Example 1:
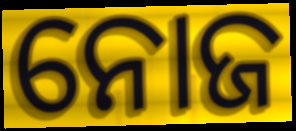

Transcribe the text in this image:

ନୋଜ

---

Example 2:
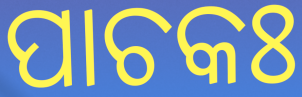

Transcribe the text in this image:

ପାଚକଃ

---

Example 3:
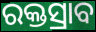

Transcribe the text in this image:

ରକ୍ତସ୍ରାବ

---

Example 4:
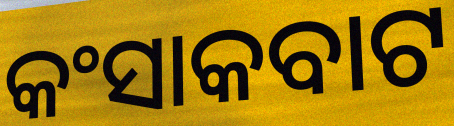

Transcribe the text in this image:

କଂସାକବାଟ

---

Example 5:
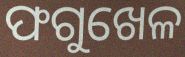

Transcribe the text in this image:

ଫଗୁଖେଳ